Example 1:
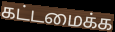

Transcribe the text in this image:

கட்டமைக்க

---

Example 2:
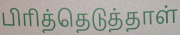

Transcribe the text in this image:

பிரித்தெடுத்தாள்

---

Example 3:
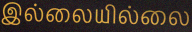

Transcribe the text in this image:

இல்லையில்லை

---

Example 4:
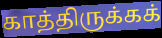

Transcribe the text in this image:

காத்திருக்கக்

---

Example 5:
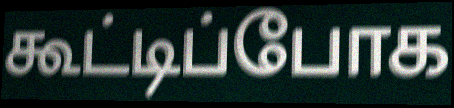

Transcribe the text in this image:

கூட்டிப்போக